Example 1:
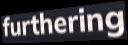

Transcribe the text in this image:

furthering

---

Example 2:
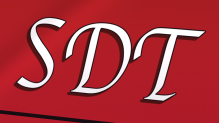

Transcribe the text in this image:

SDT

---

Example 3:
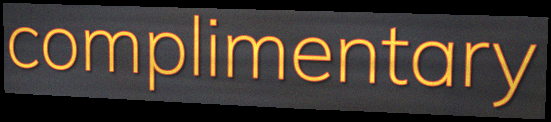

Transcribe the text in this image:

complimentary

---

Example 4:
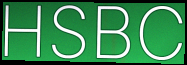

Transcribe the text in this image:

HSBC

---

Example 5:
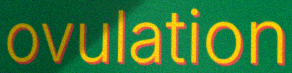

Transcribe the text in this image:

ovulation